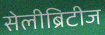
सेलीब्रिटीज